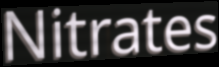
Nitrates